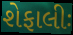
શેફાલીઃ